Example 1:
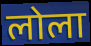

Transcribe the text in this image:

लोला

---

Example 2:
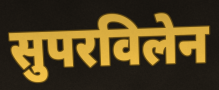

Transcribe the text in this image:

सुपरविलेन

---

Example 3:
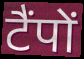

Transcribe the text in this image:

टैंपों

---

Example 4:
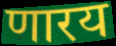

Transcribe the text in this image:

णारय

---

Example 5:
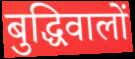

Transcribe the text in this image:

बुद्धिवालों